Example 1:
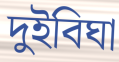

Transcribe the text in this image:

দুইবিঘা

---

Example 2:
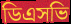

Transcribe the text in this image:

ডিএসভি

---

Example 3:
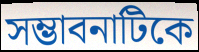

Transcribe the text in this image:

সম্ভাবনাটিকে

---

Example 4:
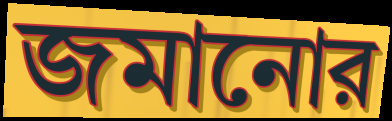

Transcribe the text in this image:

জমানোর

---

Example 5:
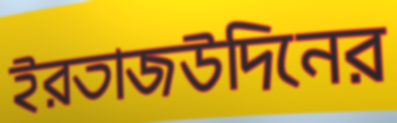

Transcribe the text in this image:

ইরতাজউদিনের